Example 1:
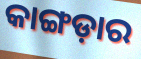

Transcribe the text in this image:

କାଙ୍ଗଡ଼ାର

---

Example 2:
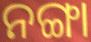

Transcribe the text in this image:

ନଙ୍ଗା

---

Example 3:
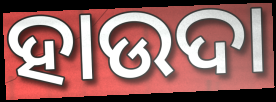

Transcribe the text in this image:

ହାଉଦା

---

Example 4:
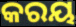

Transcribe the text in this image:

କରୟ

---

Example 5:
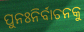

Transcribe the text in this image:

ପୁନଃନିର୍ବାଚନକୁ